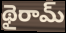
థైరామ్